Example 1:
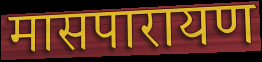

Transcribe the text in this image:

मासपारायण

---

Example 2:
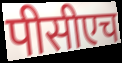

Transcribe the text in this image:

पीसीएच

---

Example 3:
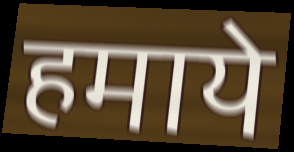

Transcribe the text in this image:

हमाये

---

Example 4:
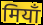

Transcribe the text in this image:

मियाँ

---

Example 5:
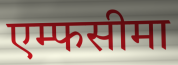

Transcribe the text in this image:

एम्फसीमा